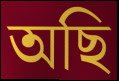
অছি